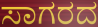
ಸಾಗರದ